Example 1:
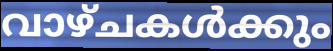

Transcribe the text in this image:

വാഴ്ചകൾക്കും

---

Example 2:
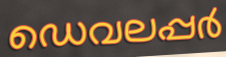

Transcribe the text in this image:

ഡെവലപ്പർ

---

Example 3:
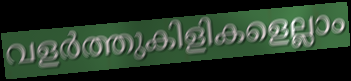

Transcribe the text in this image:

വളർത്തുകിളികളെല്ലാം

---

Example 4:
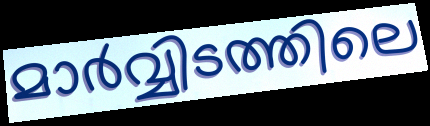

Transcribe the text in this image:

മാർവ്വിടത്തിലെ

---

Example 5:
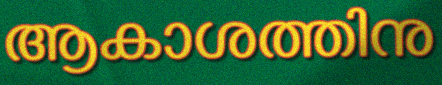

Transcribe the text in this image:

ആകാശത്തിനു